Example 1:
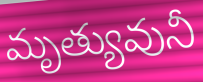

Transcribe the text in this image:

మృత్యువునీ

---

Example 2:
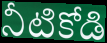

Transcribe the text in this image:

నీటికోడి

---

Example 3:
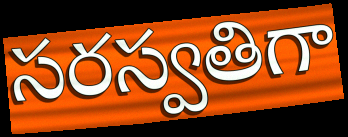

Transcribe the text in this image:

సరస్వతిగా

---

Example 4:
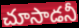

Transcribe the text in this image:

చూసాడనీ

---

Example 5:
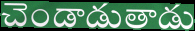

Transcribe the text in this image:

చెండాడుతాడు